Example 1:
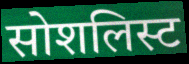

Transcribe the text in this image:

सोशलिस्‍ट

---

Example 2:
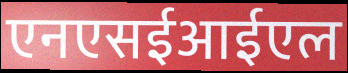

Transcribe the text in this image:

एनएसईआईएल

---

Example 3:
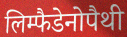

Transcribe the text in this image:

लिम्फैडेनोपैथी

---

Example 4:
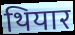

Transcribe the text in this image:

थियार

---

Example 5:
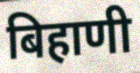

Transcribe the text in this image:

बिहाणी